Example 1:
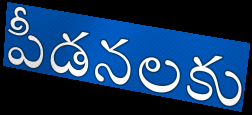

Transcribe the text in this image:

పీడనలకు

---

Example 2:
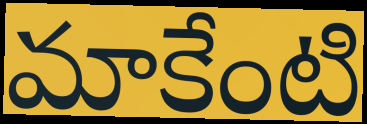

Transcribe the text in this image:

మాకేంటి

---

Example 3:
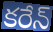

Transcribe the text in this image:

కరేన్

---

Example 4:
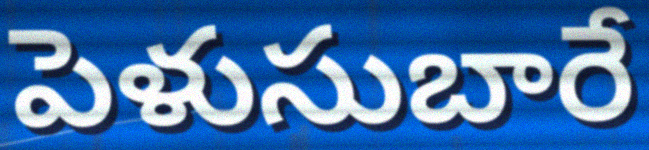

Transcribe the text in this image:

పెళుసుబారే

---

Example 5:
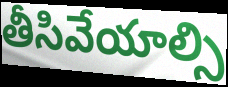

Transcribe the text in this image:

తీసివేయాల్సి